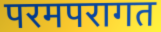
परमपरागत